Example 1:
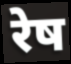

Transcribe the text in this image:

रेष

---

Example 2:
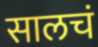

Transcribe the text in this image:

सालचं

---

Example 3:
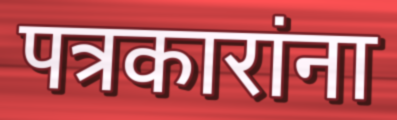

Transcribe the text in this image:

पत्रकारांना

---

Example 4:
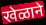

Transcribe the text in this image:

खेळाने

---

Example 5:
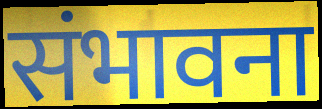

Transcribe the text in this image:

संभावना